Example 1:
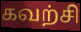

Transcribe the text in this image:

கவற்சி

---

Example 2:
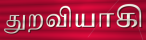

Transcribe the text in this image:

துறவியாகி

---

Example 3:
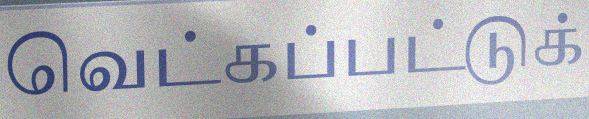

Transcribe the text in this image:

வெட்கப்பட்டுக்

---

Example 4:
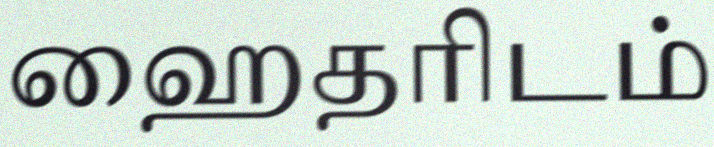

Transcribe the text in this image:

ஹைதரிடம்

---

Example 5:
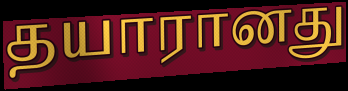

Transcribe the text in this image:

தயாரானது